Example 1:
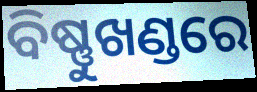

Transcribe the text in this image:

ବିଷ୍ଣୁଖଣ୍ଡରେ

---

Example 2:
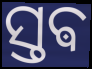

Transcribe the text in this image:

ସ୍ତଵ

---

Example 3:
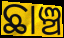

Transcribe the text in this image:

ଛାଞ୍ଚ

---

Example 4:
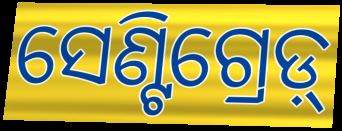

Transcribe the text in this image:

ସେଣ୍ଟିଗ୍ରେଡ଼୍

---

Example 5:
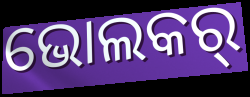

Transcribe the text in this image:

ଭୋଲକର୍